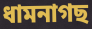
ধামনাগছ